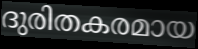
ദുരിതകരമായ